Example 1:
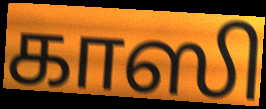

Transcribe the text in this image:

காஸி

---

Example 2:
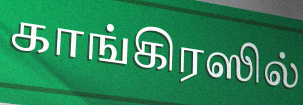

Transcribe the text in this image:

காங்கிரஸில்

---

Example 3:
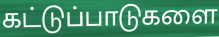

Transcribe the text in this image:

கட்டுப்பாடுகளை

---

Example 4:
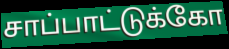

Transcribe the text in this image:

சாப்பாட்டுக்கோ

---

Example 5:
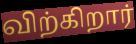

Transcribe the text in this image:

விற்கிறார்